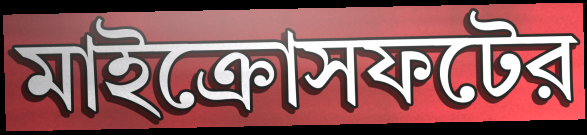
মাইক্রোসফটের